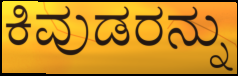
ಕಿವುಡರನ್ನು